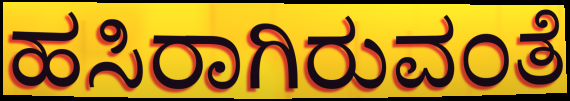
ಹಸಿರಾಗಿರುವಂತೆ